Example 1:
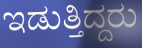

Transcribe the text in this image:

ಇಡುತ್ತಿದ್ದರು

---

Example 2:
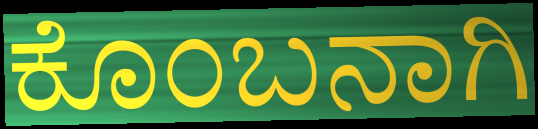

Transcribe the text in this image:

ಕೊಂಬನಾಗಿ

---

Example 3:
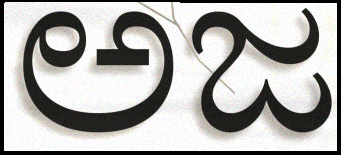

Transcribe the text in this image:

ಅಜ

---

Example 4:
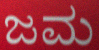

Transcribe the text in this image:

ಜಮ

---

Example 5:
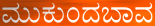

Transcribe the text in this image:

ಮುಕುಂದಬಾವ